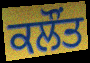
ਕਲੌਂਤ